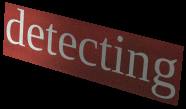
detecting